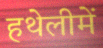
हथेलीमें